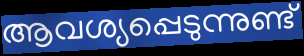
ആവശ്യപ്പെടുന്നുണ്ട്